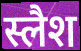
स्लैश